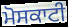
ਮੋਸਕਾਟੀ